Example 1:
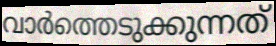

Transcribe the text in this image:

വാർത്തെടുക്കുന്നത്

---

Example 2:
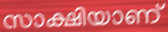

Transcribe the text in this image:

സാക്ഷിയാണ്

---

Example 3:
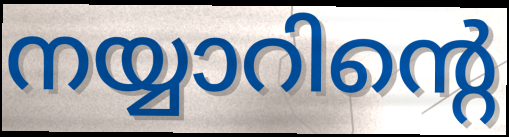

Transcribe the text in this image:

നയ്യാറിന്റെ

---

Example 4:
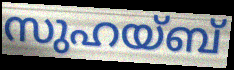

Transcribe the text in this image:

സുഹയ്ബ്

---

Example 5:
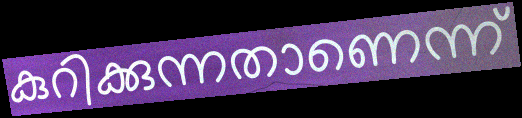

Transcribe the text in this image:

കുറിക്കുന്നതാണെന്ന്